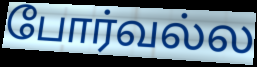
போர்வல்ல